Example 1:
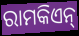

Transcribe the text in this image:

ରାମକିଏନ୍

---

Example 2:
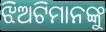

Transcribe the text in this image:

ଝିଅଟିମାନଙ୍କୁ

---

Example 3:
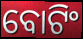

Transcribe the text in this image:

ବୋଟିଂ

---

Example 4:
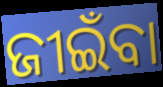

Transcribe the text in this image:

ଜୀଇଁବା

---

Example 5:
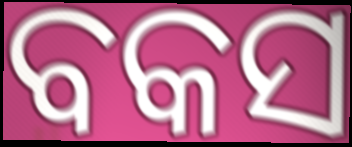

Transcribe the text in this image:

ବକସ